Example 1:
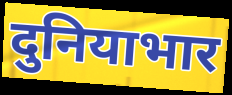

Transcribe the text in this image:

दुनियाभार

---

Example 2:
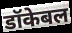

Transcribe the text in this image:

डॉकेबल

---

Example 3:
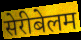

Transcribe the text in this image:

सेरीबेलम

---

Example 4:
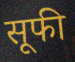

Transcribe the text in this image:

सूफी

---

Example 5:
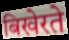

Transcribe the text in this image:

बिखेरते